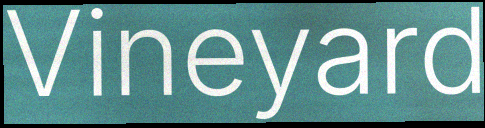
Vineyard